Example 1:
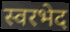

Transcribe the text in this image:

स्वरभेद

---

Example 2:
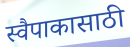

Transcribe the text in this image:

स्वैपाकासाठी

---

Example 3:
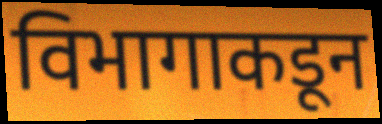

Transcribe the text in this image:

विभागाकडून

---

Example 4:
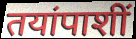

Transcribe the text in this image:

तयांपाशीं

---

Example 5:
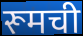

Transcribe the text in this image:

रूमची